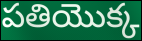
పతియొక్క